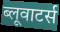
ब्लूवाटर्स